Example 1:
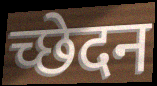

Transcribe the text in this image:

च्छेदन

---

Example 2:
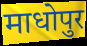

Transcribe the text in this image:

माधोपुर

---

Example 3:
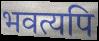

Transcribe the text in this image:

भवत्यपि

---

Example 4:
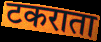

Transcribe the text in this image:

टकराता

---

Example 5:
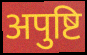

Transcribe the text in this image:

अपुष्टि